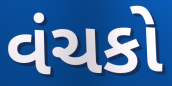
વંચકો